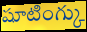
షూటింగ్కు